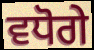
ਵਧੋਗੇ